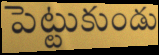
పెట్టుకుండు